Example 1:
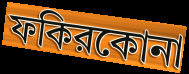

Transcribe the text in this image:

ফকিরকোনা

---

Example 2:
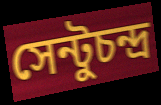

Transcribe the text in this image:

সেন্টুচন্দ্র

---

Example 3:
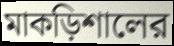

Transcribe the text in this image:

মাকড়িশালের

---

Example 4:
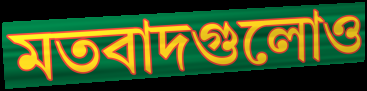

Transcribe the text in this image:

মতবাদগুলোও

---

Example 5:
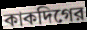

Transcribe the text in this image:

কাকদিগের